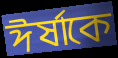
ঈর্ষাকে